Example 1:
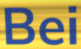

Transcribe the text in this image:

Bei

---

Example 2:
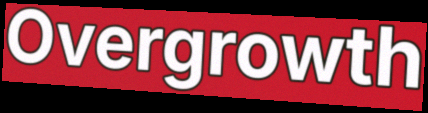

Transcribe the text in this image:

Overgrowth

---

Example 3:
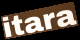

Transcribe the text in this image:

itara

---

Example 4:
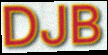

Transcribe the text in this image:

DJB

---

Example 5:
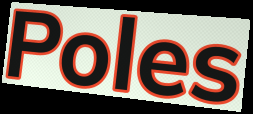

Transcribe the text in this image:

Poles